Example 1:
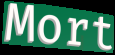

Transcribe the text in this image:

Mort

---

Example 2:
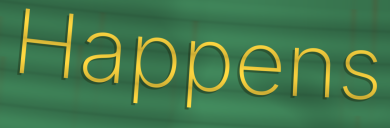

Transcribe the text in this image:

Happens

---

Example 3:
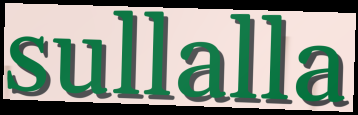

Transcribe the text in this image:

sullalla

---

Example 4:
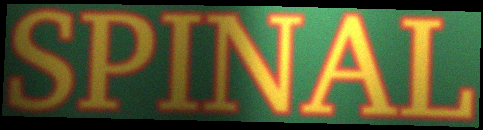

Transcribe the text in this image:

SPINAL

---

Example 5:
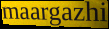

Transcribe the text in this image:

maargazhi